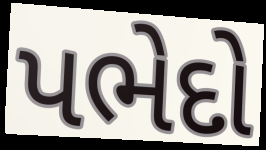
પભેદો